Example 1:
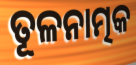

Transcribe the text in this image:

ତୂଳନାତ୍ମକ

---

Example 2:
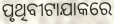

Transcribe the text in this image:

ପୃଥିବୀଟାଯାକରେ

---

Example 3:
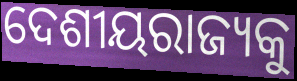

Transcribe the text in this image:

ଦେଶୀୟରାଜ୍ୟକୁ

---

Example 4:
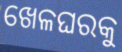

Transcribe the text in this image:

ଖେଳଘରକୁ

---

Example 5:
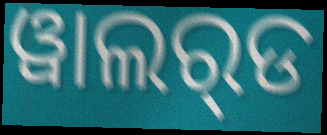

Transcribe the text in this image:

ୱାଲର୍‌ଡ